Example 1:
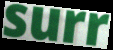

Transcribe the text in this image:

surr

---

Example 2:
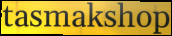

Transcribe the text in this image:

tasmakshop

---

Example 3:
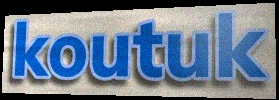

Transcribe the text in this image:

koutuk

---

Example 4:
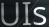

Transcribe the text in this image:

UIs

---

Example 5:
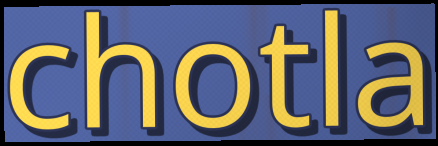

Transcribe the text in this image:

chotla